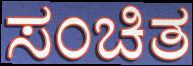
ಸಂಚಿತ